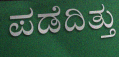
ಪಡೆದಿತ್ತು